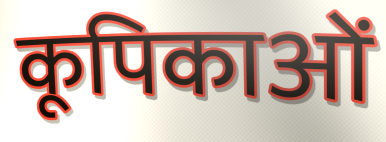
कूपिकाओं